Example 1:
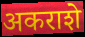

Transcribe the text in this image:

अकराशे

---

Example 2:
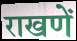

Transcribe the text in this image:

राखणें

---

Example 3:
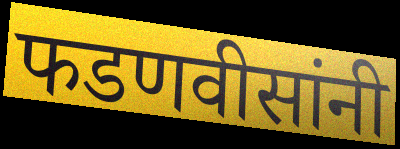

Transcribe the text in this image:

फडणवीसांनी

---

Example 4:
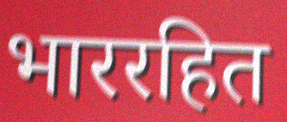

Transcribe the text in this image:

भाररहित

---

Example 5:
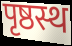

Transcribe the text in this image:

पृष्ठस्थ